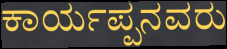
ಕಾರ್ಯಪ್ಪನವರು